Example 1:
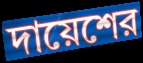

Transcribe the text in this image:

দায়েশের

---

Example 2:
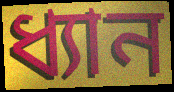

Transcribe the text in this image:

ধ্যান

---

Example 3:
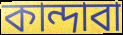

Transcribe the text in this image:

কান্দাবা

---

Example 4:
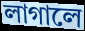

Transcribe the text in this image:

লাগালে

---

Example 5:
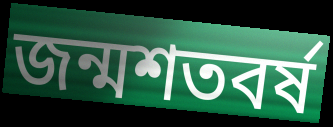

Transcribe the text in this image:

জন্মশতবর্ষ